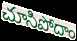
చూసిపోదాం